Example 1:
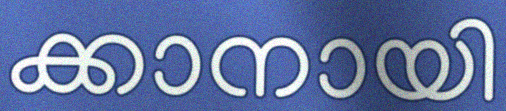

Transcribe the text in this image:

ക്കാനായി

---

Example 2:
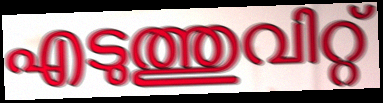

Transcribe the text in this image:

എടുത്തുവിറ്റ്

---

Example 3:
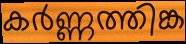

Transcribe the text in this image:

കർണ്ണത്തിങ്ക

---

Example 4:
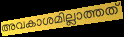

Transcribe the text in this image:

അവകാശമില്ലാത്തത്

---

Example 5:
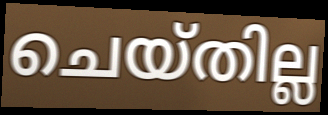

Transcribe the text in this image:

ചെയ്തില്ല